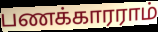
பணக்காரராம்